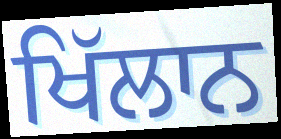
ਖਿੱਲਾਨ